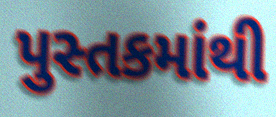
પુસ્તકમાંથી